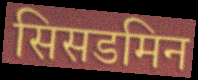
सिसडमिन